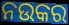
ନଉକର